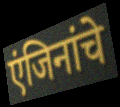
एंजिनांचे